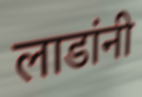
लाडांनी